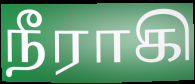
நீராகி